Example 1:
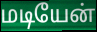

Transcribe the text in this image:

மடியேன்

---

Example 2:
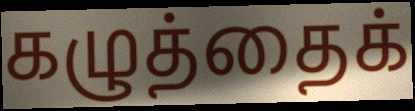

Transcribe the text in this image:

கழுத்தைக்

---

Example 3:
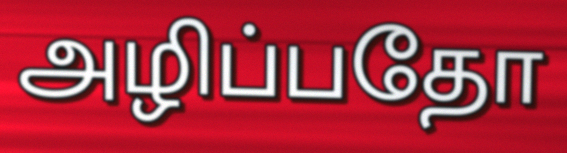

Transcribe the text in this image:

அழிப்பதோ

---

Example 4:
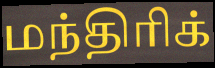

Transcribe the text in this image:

மந்திரிக்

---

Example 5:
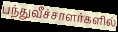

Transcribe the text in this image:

பந்துவீச்சாளர்களில்